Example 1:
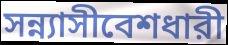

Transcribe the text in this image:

সন্ন্যাসীবেশধারী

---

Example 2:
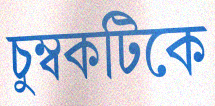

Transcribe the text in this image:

চুম্বকটিকে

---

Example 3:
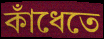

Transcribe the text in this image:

কাঁধেতে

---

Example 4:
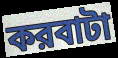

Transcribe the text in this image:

করবাটা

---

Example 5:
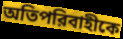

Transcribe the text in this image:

অতিপরিবাহীকে